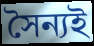
সৈন্যই